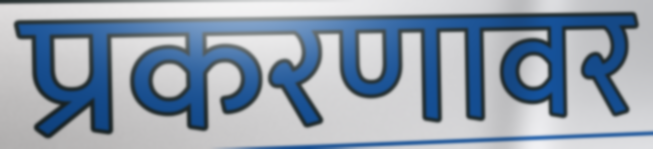
प्रकरणावर